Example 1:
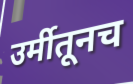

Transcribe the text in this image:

उर्मीतूनच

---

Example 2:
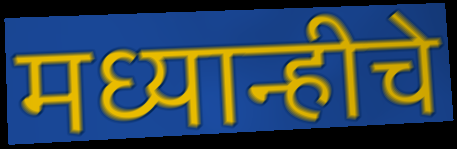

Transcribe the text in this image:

मध्यान्हीचे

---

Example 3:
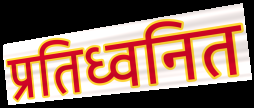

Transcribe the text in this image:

प्रतिध्वनित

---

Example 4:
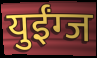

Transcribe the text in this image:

युईंग्ज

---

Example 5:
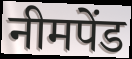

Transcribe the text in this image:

नीमपेंड